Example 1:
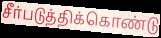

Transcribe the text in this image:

சீர்படுத்திக்கொண்டு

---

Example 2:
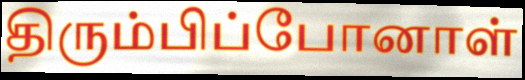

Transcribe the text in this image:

திரும்பிப்போனாள்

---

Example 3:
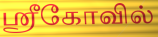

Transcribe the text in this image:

ஸ்ரீகோவில்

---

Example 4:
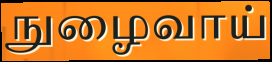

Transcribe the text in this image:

நுழைவாய்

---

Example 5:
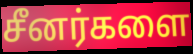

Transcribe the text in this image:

சீனர்களை